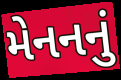
મેનનનું